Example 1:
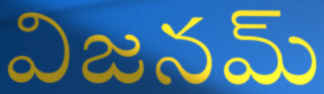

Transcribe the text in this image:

విజనమ్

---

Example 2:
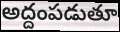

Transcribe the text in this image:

అద్దంపడుతూ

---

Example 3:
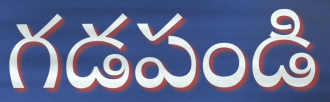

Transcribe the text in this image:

గడపండి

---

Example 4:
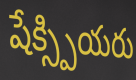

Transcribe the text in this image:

షేక్స్పియరు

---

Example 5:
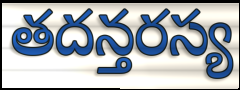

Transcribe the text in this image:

తదన్తరస్య